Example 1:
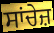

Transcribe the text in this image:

ਸਾਂਚੇਜ਼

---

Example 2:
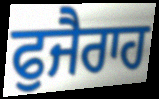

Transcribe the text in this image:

ਫੁਜੈਰਾਹ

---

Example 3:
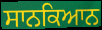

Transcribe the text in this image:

ਸਾਨਕਿਆਨ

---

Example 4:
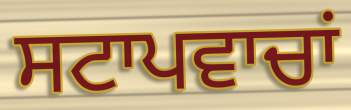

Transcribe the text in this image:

ਸਟਾਪਵਾਚਾਂ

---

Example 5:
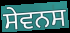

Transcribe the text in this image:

ਸੇਵਨਸ